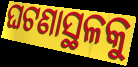
ଘଟଣାସ୍ଥଳକୁ